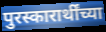
पुरस्कारार्थींच्या